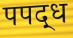
पपद्ध